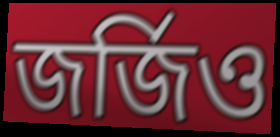
জর্জিও